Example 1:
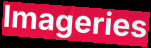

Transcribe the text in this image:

Imageries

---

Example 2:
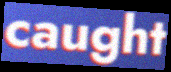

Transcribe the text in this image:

caught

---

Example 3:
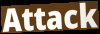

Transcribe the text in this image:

Attack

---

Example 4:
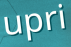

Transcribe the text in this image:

upri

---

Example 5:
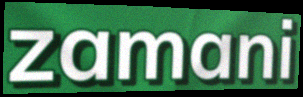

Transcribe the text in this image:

zamani